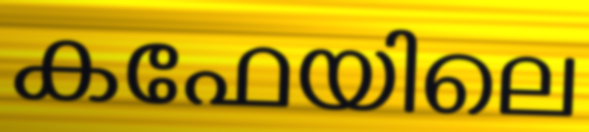
കഫേയിലെ